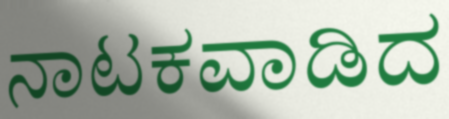
ನಾಟಕವಾಡಿದ